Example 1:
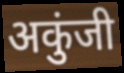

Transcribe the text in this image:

अकुंजी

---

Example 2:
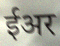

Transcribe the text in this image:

ईअर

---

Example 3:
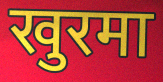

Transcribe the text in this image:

खुरमा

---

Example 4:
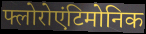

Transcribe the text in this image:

फ्लोरोएंटिमोनिक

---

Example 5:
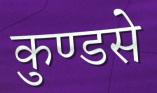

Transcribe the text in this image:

कुण्डसे